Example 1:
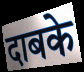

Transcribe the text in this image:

दाबके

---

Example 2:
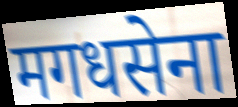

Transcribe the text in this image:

मगधसेना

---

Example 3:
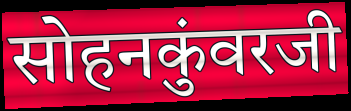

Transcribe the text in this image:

सोहनकुंवरजी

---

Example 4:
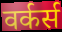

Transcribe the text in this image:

वर्कर्स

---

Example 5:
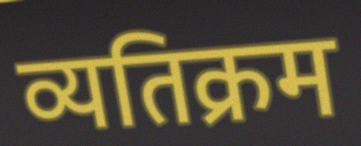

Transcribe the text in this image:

व्यतिक्रम